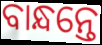
ବାନ୍ଧନ୍ତେ